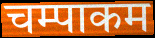
चम्पाकम